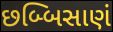
છબ્બિસાણં